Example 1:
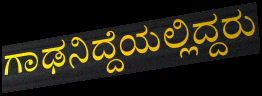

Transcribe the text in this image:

ಗಾಢನಿದ್ದೆಯಲ್ಲಿದ್ದರು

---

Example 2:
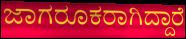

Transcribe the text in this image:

ಜಾಗರೂಕರಾಗಿದ್ದಾರೆ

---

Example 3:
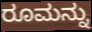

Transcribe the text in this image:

ರೂಮನ್ನು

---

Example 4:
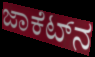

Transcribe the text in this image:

ಜಾಕೆಟ್‌ನ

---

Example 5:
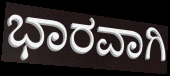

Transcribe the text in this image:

ಭಾರವಾಗಿ